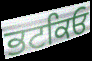
ਭਟਕਿਓ